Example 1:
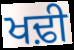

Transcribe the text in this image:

ਖਢ਼ੀ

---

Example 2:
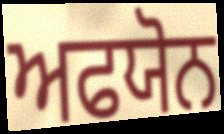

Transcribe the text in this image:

ਅਫਯੋਨ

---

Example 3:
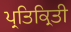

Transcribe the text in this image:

ਪ੍ਰਤਿਕ੍ਰਿਤੀ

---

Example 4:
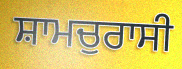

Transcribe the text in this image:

ਸ਼ਾਮਚੁਰਾਸੀ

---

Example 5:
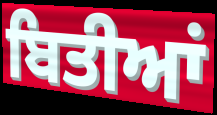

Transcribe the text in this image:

ਬਿਤੀਆਂ